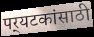
पर्यटकांसाठी